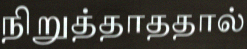
நிறுத்தாததால்